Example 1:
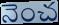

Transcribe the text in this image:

నెంచ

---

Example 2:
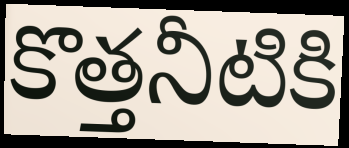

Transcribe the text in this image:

కొత్తనీటికి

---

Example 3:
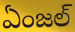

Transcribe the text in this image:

ఏంజల్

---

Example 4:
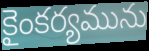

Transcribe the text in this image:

కైంకర్యమును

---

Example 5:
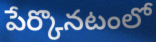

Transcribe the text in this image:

పేర్కొనటంలో